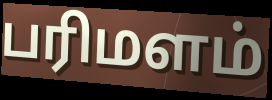
பரிமளம்